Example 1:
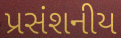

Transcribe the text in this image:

પ્રસંશનીય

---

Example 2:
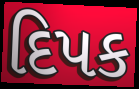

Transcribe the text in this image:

દિપક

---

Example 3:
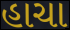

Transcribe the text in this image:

હાચા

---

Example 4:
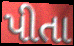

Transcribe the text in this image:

પીતા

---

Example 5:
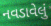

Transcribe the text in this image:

નવડાવેલું